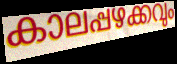
കാലപ്പഴക്കവും